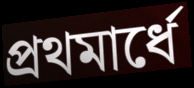
প্রথমার্ধে